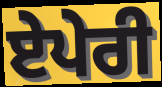
ਏਪੇਰੀ